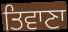
ਤਿਵਾਣਾ